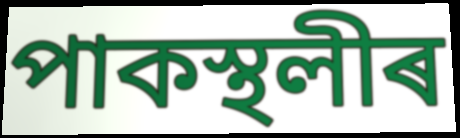
পাকস্থলীৰ